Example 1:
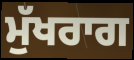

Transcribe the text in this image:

ਮੁੱਖਰਾਗ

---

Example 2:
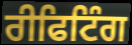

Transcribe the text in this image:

ਰੀਫਿਟਿੰਗ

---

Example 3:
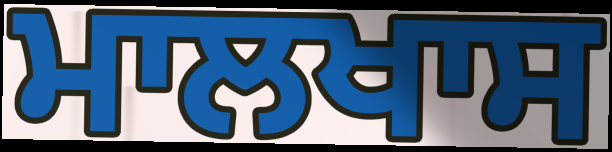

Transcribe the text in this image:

ਮਾਲਖਾਸ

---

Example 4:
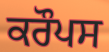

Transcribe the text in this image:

ਕਰੌਪਸ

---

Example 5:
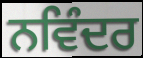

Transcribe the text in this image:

ਨਵਿੰਦਰ